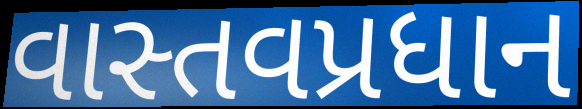
વાસ્તવપ્રધાન